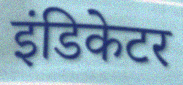
इंडिकेटर